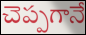
చెప్పగానే